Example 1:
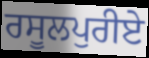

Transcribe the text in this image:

ਰਸੂਲਪੁਰੀਏ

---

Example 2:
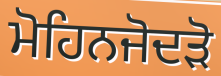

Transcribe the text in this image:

ਮੋਹਿਨਜੋਦੜੋ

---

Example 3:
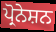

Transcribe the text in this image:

ਪ੍ਰੋਨੇਸ਼ਨ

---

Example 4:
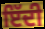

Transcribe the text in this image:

ਇੱਦੀ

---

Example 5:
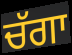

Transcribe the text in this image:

ਚੱਗਾ